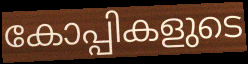
കോപ്പികളുടെ